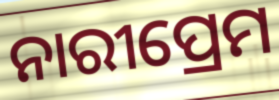
ନାରୀପ୍ରେମ